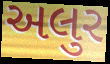
અલુર